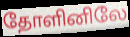
தோளினிலே